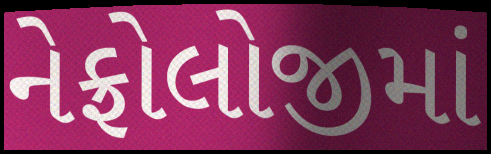
નેફ્રોલોજીમાં